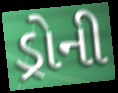
ડ્રોની